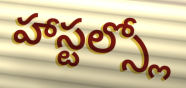
హాస్టల్స్లో